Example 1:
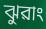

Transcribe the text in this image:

ঝুৱাং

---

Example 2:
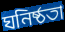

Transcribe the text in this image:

ঘনিষ্ঠতা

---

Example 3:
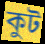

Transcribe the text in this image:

কুট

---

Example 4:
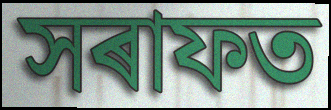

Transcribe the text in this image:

সৰাফত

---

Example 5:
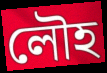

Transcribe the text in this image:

লৌহ